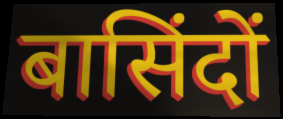
बासिंदों